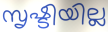
സൃഷ്ടിയില്ല